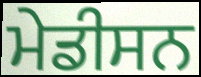
ਮੇਡੀਸਨ